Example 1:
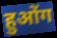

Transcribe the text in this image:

हुओंग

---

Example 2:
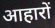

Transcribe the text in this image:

आहारों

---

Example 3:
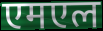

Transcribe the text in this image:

एमएल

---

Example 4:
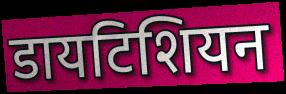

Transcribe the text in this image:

डायटिशियन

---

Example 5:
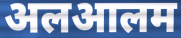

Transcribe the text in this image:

अलआलम